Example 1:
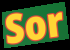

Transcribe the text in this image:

Sor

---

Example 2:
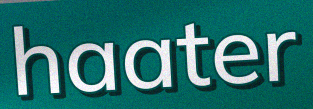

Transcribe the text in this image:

haater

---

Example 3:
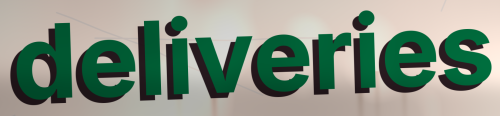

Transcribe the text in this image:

deliveries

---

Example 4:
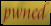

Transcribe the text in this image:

pwned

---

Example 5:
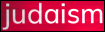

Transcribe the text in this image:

judaism